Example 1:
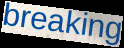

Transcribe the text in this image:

breaking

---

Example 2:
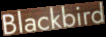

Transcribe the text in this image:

Blackbird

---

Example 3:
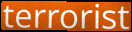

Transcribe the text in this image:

terrorist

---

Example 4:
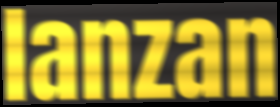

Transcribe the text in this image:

lanzan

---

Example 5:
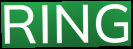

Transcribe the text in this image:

RING